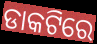
ଡାକଟିରେ